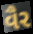
વૈર